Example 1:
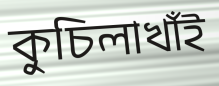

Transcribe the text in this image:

কুচিলাখাঁই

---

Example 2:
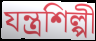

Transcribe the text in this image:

যন্ত্রশিল্পী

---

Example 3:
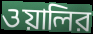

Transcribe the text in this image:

ওয়ালির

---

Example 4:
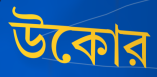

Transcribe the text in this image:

উকোর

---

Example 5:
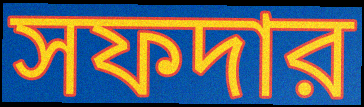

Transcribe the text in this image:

সফদার